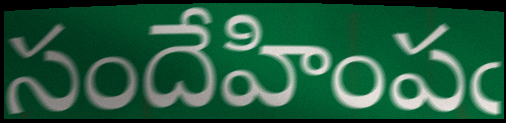
సందేహింపఁ